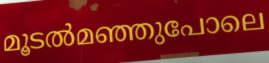
മൂടൽമഞ്ഞുപോലെ